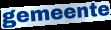
gemeente